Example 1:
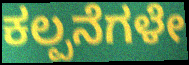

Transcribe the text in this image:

ಕಲ್ಪನೆಗಳೇ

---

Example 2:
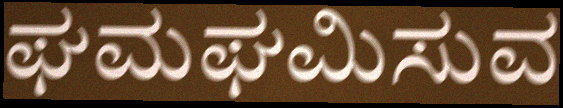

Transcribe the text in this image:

ಘಮಘಮಿಸುವ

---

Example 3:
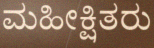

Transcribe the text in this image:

ಮಹೀಕ್ಷಿತರು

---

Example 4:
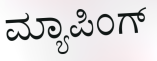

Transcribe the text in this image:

ಮ್ಯಾಪಿಂಗ್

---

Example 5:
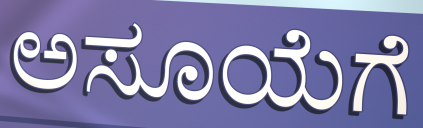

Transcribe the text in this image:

ಅಸೂಯೆಗೆ